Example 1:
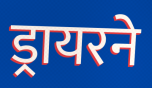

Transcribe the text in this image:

ड्रायरने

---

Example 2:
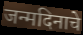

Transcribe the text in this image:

जन्मदिनाचे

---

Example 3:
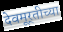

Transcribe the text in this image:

देवमूर्तीच्या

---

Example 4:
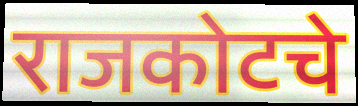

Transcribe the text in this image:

राजकोटचे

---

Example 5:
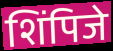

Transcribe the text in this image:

शिंपिजे